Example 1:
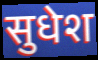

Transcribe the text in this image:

सुधेश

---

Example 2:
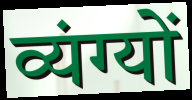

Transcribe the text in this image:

व्यंग्यों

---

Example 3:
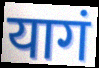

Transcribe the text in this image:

यागं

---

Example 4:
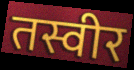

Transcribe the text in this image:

तस्‍वीर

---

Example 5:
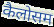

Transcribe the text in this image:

कैलोसम